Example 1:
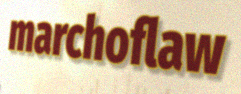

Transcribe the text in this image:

marchoflaw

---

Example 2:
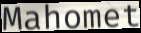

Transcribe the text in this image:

Mahomet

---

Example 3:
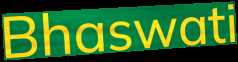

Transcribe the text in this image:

Bhaswati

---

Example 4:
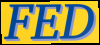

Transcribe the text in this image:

FED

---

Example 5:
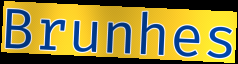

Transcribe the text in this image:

Brunhes